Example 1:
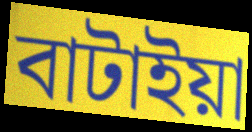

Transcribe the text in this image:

বাটাইয়া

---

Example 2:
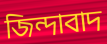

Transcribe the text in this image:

জিন্দাবাদ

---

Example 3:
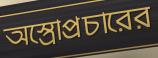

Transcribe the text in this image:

অস্ত্রোপ্রচারের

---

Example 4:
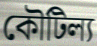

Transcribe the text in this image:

কৌটিল্য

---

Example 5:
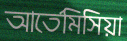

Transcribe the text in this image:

আর্তেমিসিয়া